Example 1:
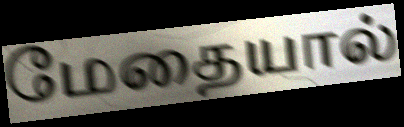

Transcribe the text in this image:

மேதையால்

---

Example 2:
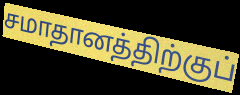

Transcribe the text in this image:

சமாதானத்திற்குப்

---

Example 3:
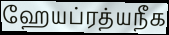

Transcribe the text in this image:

ஹேயப்ரத்யநீக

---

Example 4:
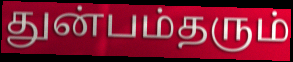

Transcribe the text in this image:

துன்பம்தரும்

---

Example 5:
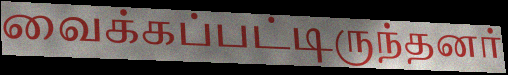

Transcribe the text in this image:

வைக்கப்பட்டிருந்தனர்